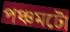
পঞ্চমটো